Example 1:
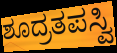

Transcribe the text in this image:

ಶೂದ್ರತಪಸ್ವಿ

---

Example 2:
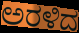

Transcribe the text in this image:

ಅರಳಿದ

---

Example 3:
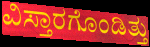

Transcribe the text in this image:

ವಿಸ್ತಾರಗೊಂಡಿತ್ತು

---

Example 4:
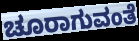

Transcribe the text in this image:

ಚೂರಾಗುವಂತೆ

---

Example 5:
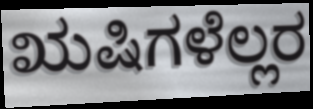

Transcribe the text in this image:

ಋಷಿಗಳೆಲ್ಲರ